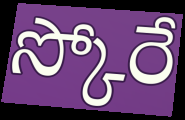
స్కోరే